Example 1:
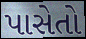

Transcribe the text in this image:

પાસેતો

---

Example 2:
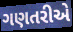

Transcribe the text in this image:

ગણતરીએ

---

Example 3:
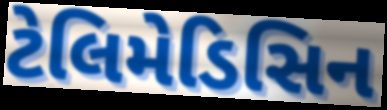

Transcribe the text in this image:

ટેલિમેડિસિન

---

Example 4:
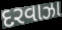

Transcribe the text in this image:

દરવાઝા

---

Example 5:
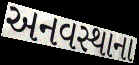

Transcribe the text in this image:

અનવસ્થાના